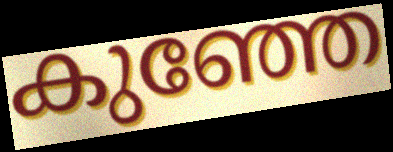
കുഞ്ഞേ